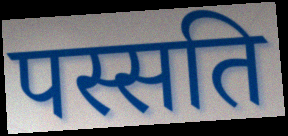
पस्सति